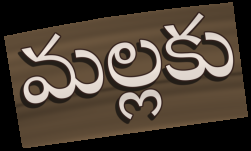
మల్లకు